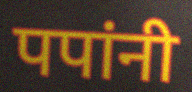
पपांनी